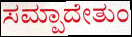
ಸಮ್ಪಾದೇತುಂ